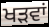
ਖੜਵਾਂ